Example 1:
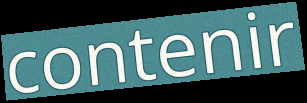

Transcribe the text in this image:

contenir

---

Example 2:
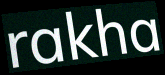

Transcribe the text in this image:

rakha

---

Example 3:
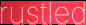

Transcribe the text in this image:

rustled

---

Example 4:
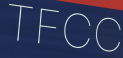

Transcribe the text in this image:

TFCC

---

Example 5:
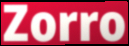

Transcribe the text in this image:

Zorro